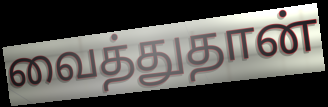
வைத்துதான்